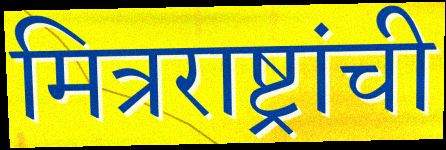
मित्रराष्ट्रांची